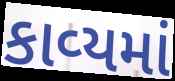
કાવ્‍યમાં